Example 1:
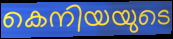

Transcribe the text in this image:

കെനിയയുടെ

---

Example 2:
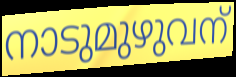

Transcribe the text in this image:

നാടുമുഴുവന്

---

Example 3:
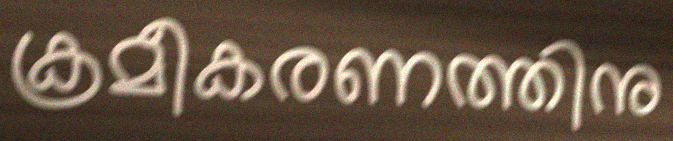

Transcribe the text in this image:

ക്രമീകരണത്തിനു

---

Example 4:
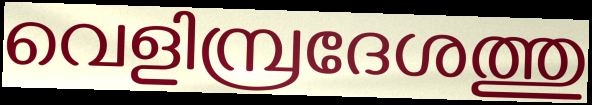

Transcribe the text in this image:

വെളിമ്പ്രദേശത്തു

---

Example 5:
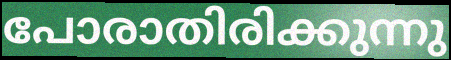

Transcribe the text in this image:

പോരാതിരിക്കുന്നു